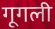
गूगली